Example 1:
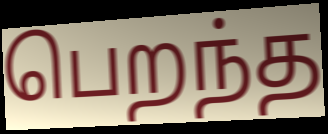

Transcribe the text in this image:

பெறந்த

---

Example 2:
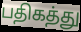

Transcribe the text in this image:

பதிகத்து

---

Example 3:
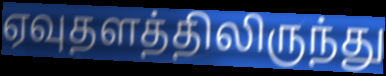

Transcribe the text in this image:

ஏவுதளத்திலிருந்து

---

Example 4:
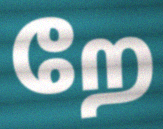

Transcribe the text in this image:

றே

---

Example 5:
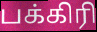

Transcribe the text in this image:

பக்கிரி